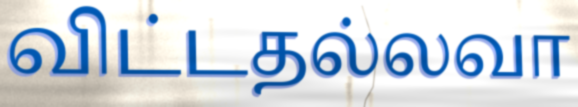
விட்டதல்லவா